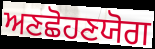
ਅਣਛੋਹਣਯੋਗ